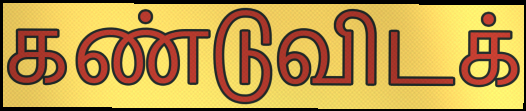
கண்டுவிடக்